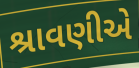
શ્રાવણીએ